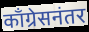
काँग्रेसनंतर